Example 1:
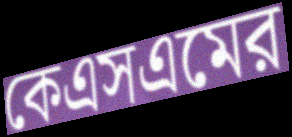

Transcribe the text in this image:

কেএসএমের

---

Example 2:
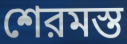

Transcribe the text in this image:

শেরমস্ত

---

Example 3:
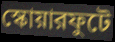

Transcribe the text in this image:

স্কোয়ারফুটে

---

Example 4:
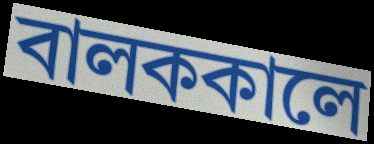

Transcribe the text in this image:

বালককালে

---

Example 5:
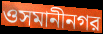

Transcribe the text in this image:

ওসমানীনগর